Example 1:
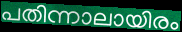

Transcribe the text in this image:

പതിന്നാലായിരം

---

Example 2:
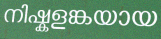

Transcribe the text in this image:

നിഷ്കളങ്കയായ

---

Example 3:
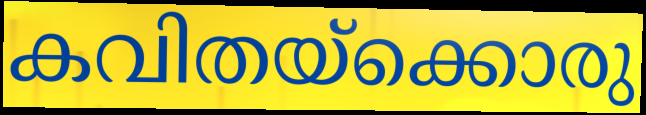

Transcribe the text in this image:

കവിതയ്ക്കൊരു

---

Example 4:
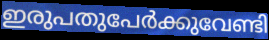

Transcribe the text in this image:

ഇരുപതുപേർക്കുവേണ്ടി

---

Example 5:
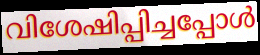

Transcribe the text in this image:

വിശേഷിപ്പിച്ചപ്പോൾ